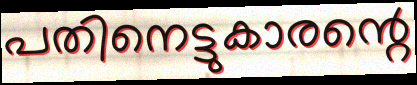
പതിനെട്ടുകാരന്റെ